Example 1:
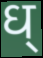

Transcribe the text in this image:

ध्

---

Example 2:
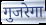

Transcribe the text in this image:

गुजरेगा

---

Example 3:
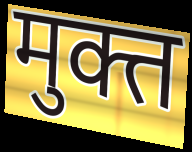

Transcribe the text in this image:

मुक्त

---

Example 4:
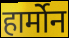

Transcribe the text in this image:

हार्मोन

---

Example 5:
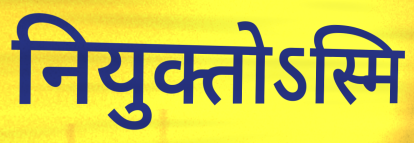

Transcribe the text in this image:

नियुक्तोऽस्मि